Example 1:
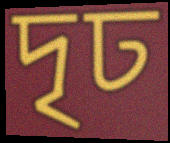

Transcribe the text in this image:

দৃঢ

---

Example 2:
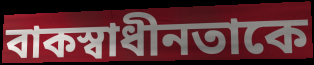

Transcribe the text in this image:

বাকস্বাধীনতাকে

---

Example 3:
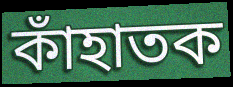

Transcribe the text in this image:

কাঁহাতক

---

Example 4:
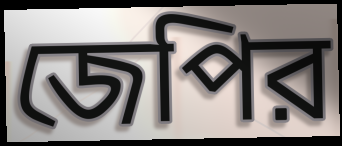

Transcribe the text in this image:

জেপির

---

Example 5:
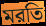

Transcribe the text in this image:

মরতি